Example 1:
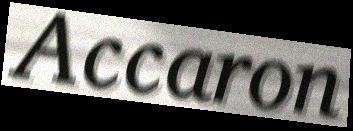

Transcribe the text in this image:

Accaron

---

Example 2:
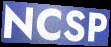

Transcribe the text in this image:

NCSP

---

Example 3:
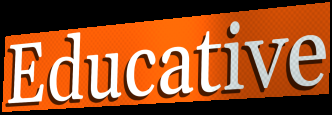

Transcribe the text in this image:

Educative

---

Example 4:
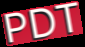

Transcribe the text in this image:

PDT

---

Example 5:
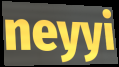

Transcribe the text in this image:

neyyi